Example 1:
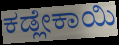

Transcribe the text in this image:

ಕಡ್ಲೇಕಾಯಿ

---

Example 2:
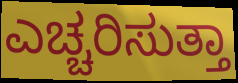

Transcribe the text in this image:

ಎಚ್ಚರಿಸುತ್ತಾ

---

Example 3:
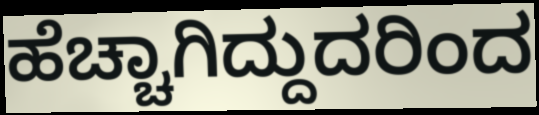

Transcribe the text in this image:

ಹೆಚ್ಚಾಗಿದ್ದುದರಿಂದ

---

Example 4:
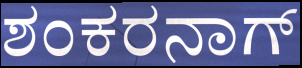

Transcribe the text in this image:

ಶಂಕರನಾಗ್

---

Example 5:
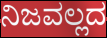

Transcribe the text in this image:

ನಿಜವಲ್ಲದ